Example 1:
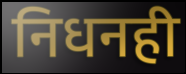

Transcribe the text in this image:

निधनही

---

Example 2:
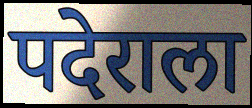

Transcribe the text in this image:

पदेराला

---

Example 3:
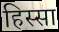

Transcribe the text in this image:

हिस्सा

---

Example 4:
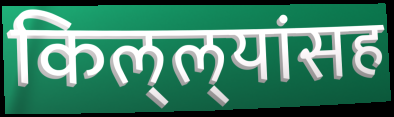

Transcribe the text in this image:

किल्ल्यांसह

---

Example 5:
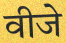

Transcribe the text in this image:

वीजे